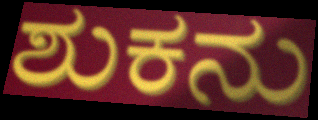
ಶುಕನು